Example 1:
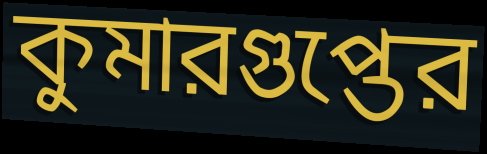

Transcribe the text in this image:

কুমারগুপ্তের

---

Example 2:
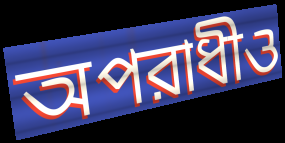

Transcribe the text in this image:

অপরাধীও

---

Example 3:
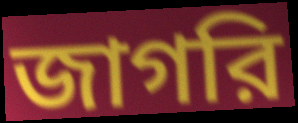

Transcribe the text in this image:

জাগরি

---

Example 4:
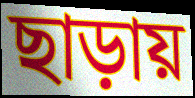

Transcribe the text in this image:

ছাড়ায়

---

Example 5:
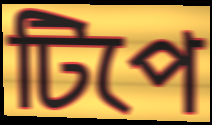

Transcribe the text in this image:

টিপে